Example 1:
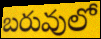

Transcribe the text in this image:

బరువులో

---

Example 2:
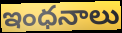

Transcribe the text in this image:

ఇంధనాలు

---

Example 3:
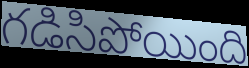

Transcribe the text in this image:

గడిసిపోయింది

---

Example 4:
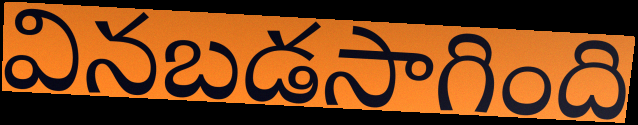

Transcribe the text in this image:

వినబడసాగింది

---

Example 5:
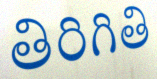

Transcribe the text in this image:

తిరిగితి